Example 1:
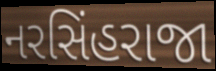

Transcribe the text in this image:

નરસિંહરાજા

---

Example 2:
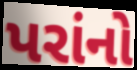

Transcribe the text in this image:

પરાંનો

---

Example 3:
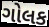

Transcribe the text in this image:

ગોલક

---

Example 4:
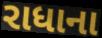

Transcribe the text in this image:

રાધાના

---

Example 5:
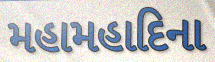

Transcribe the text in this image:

મહામહાદિના